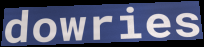
dowries